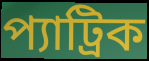
প্যাট্রিক